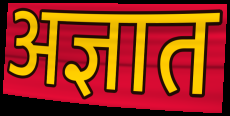
अज्ञात